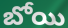
బోయి